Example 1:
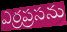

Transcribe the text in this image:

ఎర్రప్రసను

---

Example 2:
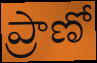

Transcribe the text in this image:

ప్రాణో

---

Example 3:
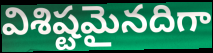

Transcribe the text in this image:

విశిష్టమైనదిగా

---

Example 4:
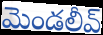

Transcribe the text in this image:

మెండలీవ్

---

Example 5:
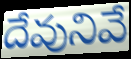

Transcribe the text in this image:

దేవునివే